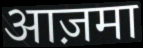
आज़मा